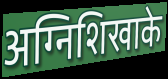
अग्निशिखाके